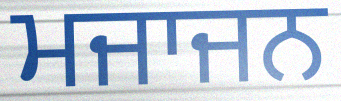
ਮਜਾਜਨ